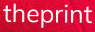
theprint